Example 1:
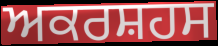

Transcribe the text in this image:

ਅਕਰਸ਼ਹਸ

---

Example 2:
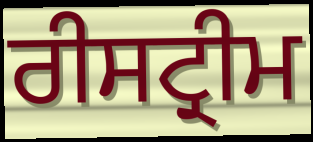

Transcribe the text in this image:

ਰੀਸਟ੍ਰੀਮ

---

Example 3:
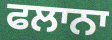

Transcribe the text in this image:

ਫਲਾਨਾ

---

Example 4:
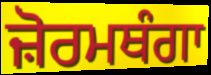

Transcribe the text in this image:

ਜ਼ੋਰਮਥੰਗਾ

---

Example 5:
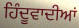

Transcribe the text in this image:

ਹਿੰਦੂਵਾਦੀਆਂ